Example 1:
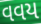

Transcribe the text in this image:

વવય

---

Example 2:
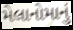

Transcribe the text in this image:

મેલાનોમાનું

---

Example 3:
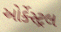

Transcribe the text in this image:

ઓર્કેસ્ટ્રલ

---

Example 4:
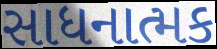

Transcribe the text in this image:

સાધનાત્મક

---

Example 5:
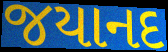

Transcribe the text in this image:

જયાનદ